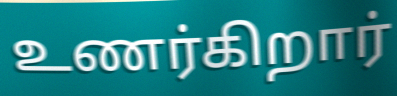
உணர்கிறார்